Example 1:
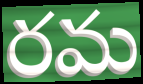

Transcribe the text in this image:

రమ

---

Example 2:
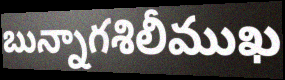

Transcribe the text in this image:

బున్నాగశిలీముఖ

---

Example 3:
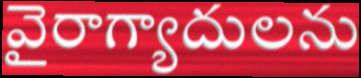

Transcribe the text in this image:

వైరాగ్యాదులను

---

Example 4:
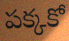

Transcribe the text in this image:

పక్కకో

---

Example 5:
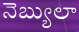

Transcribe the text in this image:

నెబ్యులా